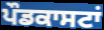
ਪੌਡਕਾਸਟਾਂ